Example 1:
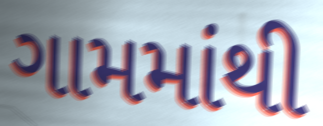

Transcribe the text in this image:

ગામમાંથી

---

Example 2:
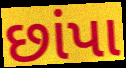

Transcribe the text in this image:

છાંપા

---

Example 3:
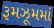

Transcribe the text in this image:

રૂમઝૂમમાં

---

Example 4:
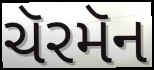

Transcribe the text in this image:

ચૅરમૅન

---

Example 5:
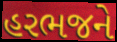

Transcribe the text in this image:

હરભજને